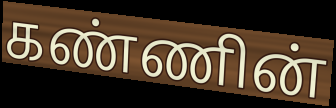
கண்ணின்